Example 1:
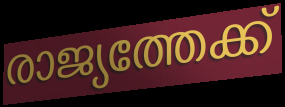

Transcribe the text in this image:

രാജ്യത്തേക്ക്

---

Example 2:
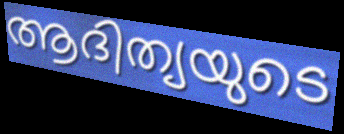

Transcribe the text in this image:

ആദിത്യയുടെ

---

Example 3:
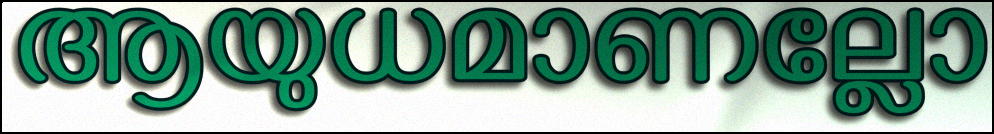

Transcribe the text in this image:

ആയുധമാണല്ലോ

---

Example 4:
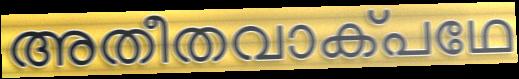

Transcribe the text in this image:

അതീതവാക്പഥേ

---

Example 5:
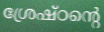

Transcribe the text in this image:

ശ്രേഷ്ഠന്റെ